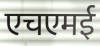
एचएमई